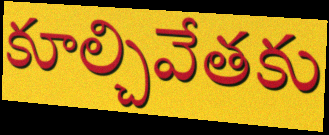
కూల్చివేతకు